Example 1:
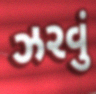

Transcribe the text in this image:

ઝરવું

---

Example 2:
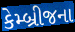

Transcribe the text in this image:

કેમ્બ્રીજના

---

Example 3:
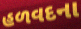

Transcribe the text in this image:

હળવદના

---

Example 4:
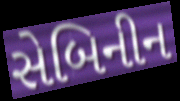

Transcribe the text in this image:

સેબિનીન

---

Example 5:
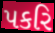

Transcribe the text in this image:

પકરિ